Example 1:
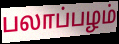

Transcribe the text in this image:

பலாப்பழம்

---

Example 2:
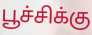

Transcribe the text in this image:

பூச்சிக்கு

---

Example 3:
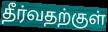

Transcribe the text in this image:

தீர்வதற்குள்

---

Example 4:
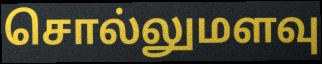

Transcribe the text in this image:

சொல்லுமளவு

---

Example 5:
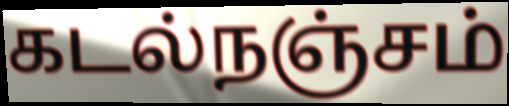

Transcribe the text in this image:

கடல்நஞ்சம்